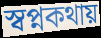
স্বপ্নকথায়